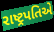
રાષ્ટ્રપતિએ